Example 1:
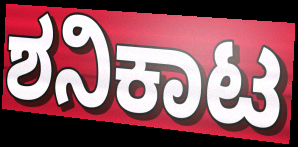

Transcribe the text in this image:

ಶನಿಕಾಟ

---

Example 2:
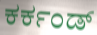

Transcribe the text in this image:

ಕರ್ಕಂಡ್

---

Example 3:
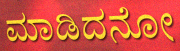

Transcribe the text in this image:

ಮಾಡಿದನೋ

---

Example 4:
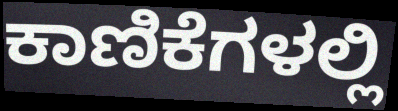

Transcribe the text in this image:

ಕಾಣಿಕೆಗಳಲ್ಲಿ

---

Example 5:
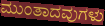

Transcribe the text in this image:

ಮುಂತಾದವುಗಳು